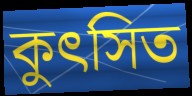
কুৎসিত